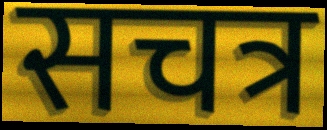
सचत्र